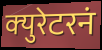
क्युरेटरनं